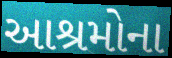
આશ્રમોના